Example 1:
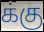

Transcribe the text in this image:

க்கு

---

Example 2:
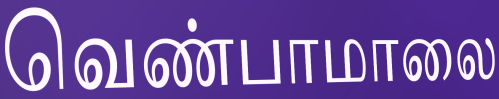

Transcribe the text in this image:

வெண்பாமாலை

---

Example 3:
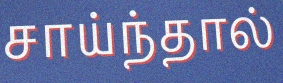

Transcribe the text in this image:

சாய்ந்தால்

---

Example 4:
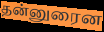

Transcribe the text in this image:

தன்னுரைன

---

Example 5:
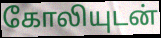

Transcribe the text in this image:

கோலியுடன்